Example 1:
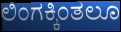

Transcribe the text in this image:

ಲಿಂಗಕ್ಕಿಂತಲೂ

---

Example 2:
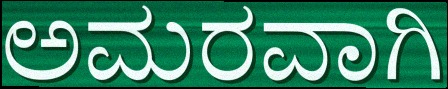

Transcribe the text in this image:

ಅಮರವಾಗಿ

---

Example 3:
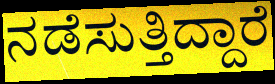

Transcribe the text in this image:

ನಡೆಸುತ್ತಿದ್ದಾರೆ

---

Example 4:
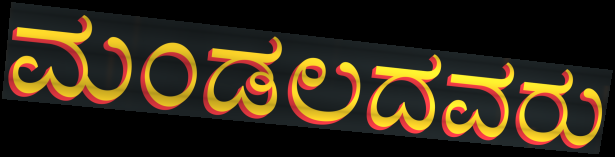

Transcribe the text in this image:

ಮಂಡಲದವರು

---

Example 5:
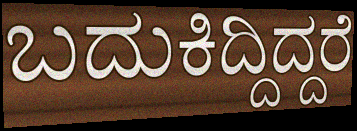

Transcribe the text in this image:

ಬದುಕಿದ್ದಿದ್ದರೆ